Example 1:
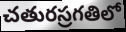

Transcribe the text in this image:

చతురస్రగతిలో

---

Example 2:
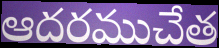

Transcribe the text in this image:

ఆదరముచేత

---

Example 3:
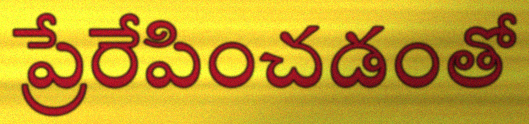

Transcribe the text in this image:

ప్రేరేపించడంతో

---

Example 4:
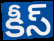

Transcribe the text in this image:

కీస్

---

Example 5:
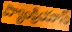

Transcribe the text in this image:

ప్యాంక్రియాస్